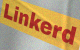
Linkerd